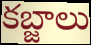
కబ్జాలు